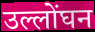
उल्लोंघन